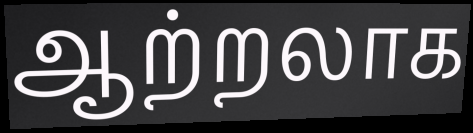
ஆற்றலாக